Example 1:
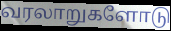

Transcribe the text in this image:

வரலாறுகளோடு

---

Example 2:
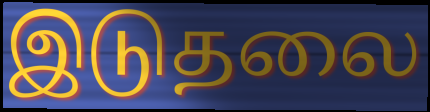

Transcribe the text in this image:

இடுதலை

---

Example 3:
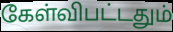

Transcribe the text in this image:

கேள்விபட்டதும்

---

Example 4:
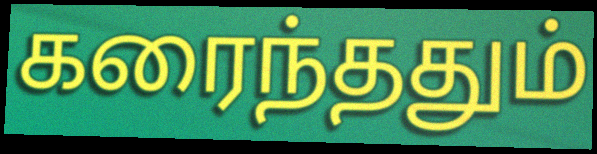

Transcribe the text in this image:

கரைந்ததும்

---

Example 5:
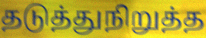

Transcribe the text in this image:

தடுத்துநிறுத்த